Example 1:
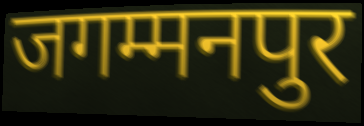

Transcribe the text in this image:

जगम्मनपुर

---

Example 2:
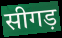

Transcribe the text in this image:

सीगड़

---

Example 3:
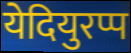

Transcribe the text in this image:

येदियुरप्प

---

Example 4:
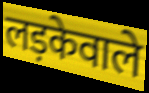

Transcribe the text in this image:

लड़केवाले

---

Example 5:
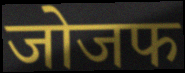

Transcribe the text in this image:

जोजफ